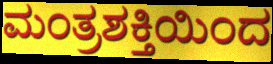
ಮಂತ್ರಶಕ್ತಿಯಿಂದ